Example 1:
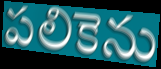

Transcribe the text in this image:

పలికెను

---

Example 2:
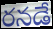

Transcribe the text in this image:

రనడే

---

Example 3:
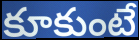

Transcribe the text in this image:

కూకుంటే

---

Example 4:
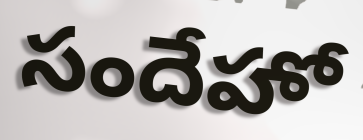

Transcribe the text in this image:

సందేహో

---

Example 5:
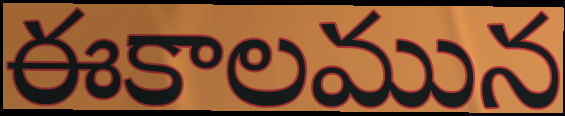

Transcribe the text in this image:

ఈకాలమున